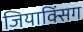
जियाक्सिंग